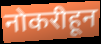
नोकरीहून